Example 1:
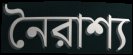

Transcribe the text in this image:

নৈরাশ্য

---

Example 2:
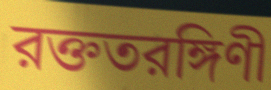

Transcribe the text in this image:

রক্ততরঙ্গিণী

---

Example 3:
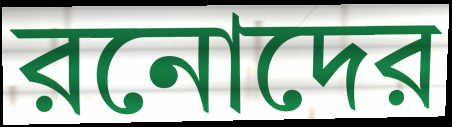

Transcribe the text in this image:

রনোদের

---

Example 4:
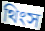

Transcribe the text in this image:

থিংস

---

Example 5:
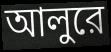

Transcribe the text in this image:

আলুরে